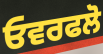
ਓਵਰਫਲੋ